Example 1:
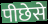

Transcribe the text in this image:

पीछेसे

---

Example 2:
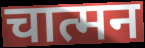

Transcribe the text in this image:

चात्मन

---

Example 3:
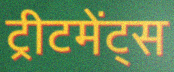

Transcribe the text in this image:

ट्रीटमेंट्स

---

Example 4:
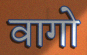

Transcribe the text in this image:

वागो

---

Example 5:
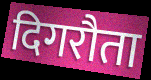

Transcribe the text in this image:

दिगरौता